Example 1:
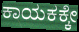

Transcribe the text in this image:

ಕಾಯಕಕ್ಕೇ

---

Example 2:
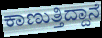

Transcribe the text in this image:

ಕಾಣುತ್ತಿದ್ದಾನೆ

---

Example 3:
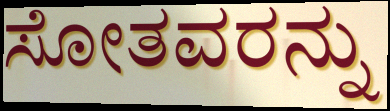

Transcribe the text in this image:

ಸೋತವರನ್ನು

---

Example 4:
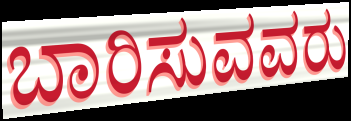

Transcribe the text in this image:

ಬಾರಿಸುವವರು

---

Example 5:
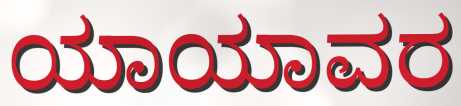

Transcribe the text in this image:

ಯಾಯಾವರ